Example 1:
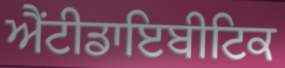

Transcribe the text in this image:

ਐਂਟੀਡਾਇਬੀਟਿਕ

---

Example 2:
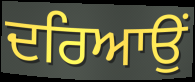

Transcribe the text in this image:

ਦਰਿਆਉਂ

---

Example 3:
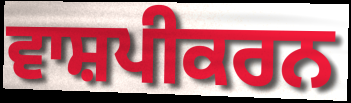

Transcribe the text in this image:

ਵਾਸ਼ਪੀਕਰਨ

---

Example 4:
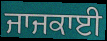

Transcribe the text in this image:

ਜਾਜਕਾਈ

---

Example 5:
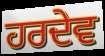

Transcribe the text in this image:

ਹਰਦੇਵ